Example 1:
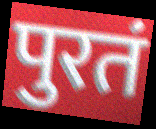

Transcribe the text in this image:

पुरतं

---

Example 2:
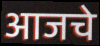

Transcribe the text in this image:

आजचे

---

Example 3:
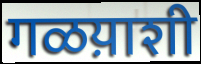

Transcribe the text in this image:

गळय़ाशी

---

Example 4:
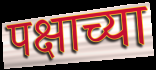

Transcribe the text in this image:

पक्षाच्या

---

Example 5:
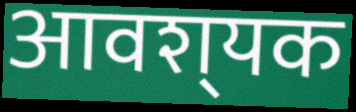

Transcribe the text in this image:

आवश्यक